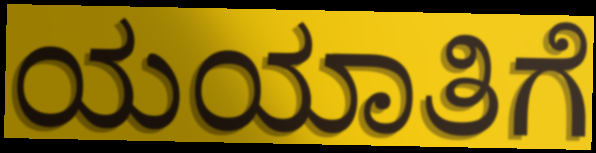
ಯಯಾತಿಗೆ